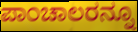
ಪಾಂಚಾಲರನ್ನೂ